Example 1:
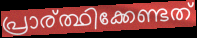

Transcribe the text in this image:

പ്രാര്ത്ഥിക്കേണ്ടത്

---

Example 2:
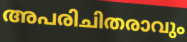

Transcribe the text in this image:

അപരിചിതരാവും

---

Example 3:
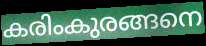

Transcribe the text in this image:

കരിംകുരങ്ങനെ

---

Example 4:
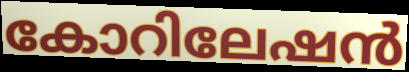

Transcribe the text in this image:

കോറിലേഷൻ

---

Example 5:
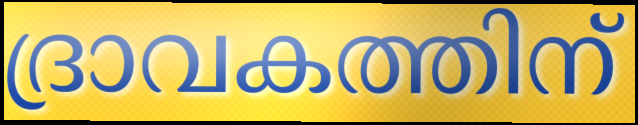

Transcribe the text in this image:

ദ്രാവകത്തിന്